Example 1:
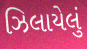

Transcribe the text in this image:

ઝિલાયેલું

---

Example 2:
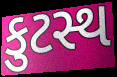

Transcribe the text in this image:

કુટસ્થ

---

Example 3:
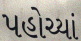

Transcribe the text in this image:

પહોચ્યાં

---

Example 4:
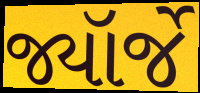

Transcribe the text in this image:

જ્યૉર્જે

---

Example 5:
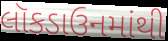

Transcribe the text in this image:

લૉકડાઉનમાંથી